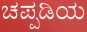
ಚಪ್ಪಡಿಯ